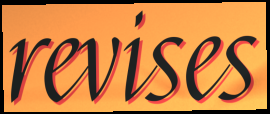
revises